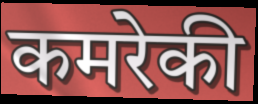
कमरेकी